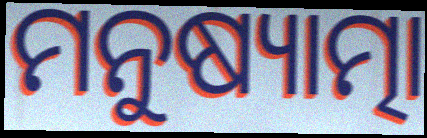
ମନୁଷ୍ୟାତ୍ମା